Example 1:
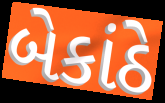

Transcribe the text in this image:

બેકાંઠે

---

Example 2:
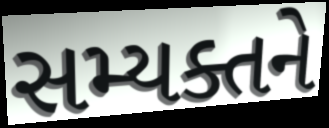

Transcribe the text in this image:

સમ્યક્તને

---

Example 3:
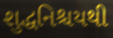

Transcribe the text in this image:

શુદ્ધનિશ્ચયથી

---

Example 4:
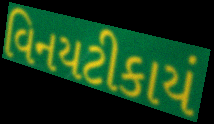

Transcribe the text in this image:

વિનયટીકાયં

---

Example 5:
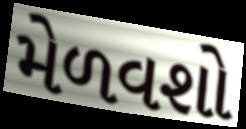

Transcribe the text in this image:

મેળવશો